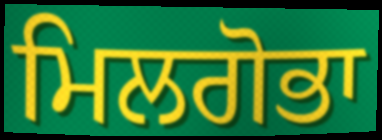
ਮਿਲਗੋਭਾ